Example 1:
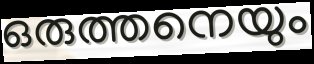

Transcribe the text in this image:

ഒരുത്തനെയും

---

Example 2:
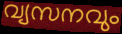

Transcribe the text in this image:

വ്യസനവും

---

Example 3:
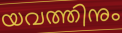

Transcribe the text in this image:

യവത്തിനും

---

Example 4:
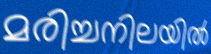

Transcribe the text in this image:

മരിച്ചനിലയിൽ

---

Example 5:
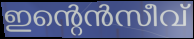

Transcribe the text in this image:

ഇന്റെൻസീവ്